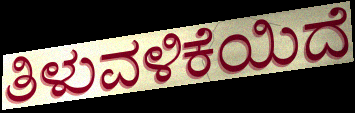
ತಿಳುವಳಿಕೆಯಿದೆ